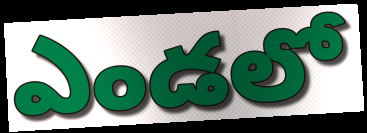
ఎండలో